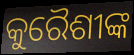
କୁରୈଶୀଙ୍କ